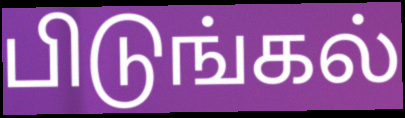
பிடுங்கல்